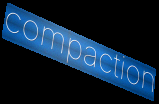
compaction